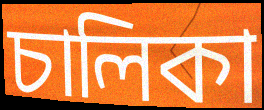
চালিকা